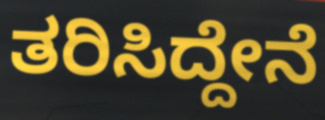
ತರಿಸಿದ್ದೇನೆ